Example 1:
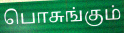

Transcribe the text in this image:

பொசுங்கும்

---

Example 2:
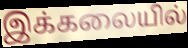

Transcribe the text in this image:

இக்கலையில்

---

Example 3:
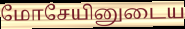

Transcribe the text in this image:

மோசேயினுடைய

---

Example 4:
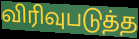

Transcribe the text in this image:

விரிவுபடுத்த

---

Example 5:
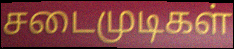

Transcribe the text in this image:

சடைமுடிகள்